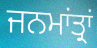
ਜਨਮਾਂਤ੍ਰਾਂ